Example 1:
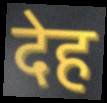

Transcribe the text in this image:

देह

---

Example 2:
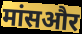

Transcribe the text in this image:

मांसऔर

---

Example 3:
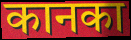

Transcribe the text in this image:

कानका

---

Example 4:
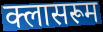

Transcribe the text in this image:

क्लासरूम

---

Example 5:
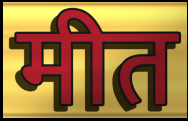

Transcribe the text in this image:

मीत